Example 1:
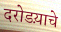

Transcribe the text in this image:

दरोडय़ाचे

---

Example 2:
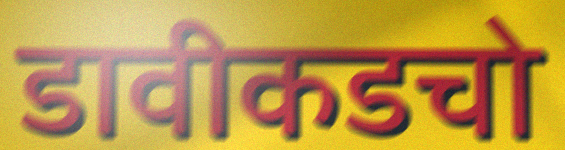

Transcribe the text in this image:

डावीकडचो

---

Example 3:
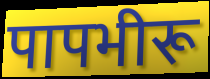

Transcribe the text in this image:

पापभीरू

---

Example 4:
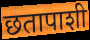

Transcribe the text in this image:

छतापाशी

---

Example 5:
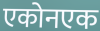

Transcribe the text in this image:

एकोनएक